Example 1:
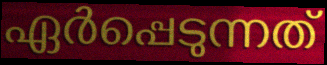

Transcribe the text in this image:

ഏർപ്പെടുന്നത്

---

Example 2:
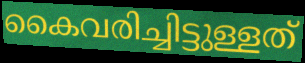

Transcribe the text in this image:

കൈവരിച്ചിട്ടുള്ളത്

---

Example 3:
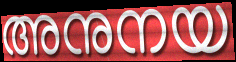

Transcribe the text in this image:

അനുനയ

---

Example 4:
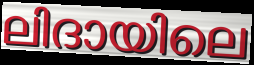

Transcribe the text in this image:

ലിദായിലെ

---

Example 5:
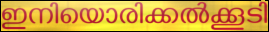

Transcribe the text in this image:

ഇനിയൊരിക്കൽക്കൂടി